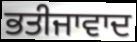
ਭਤੀਜਾਵਾਦ